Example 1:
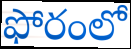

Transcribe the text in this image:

ఫోరంలో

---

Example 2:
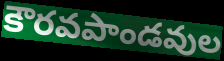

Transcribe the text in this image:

కౌరవపాండవుల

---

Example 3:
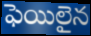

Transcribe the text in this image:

ఫెయిలైన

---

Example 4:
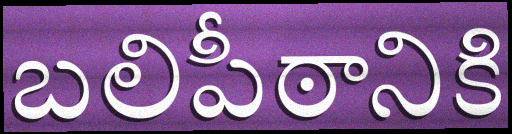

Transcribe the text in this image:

బలిపీఠానికి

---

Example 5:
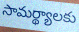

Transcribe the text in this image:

సామర్థ్యాలకు